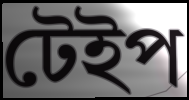
টেইপ